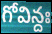
గోవిన్దః